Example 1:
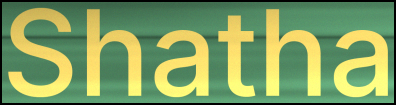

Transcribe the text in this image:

Shatha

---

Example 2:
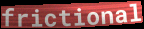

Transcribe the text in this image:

frictional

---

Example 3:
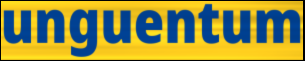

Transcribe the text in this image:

unguentum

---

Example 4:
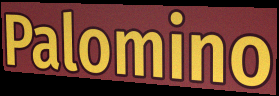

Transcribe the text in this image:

Palomino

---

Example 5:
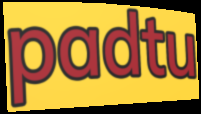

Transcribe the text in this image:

padtu